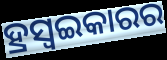
ହ୍ରସ୍ୱଇକାରର